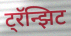
ट्रॅन्झिट